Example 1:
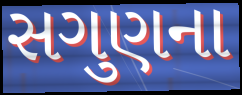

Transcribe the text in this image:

સગુણના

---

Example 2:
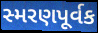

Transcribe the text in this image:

સ્મરણપૂર્વક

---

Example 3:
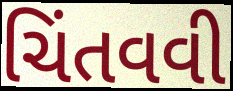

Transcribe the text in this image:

ચિંતવવી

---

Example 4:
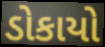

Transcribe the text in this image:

ડોકાયો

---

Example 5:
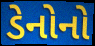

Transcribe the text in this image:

ડેનોનો